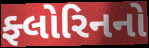
ફ્લોરિનનો